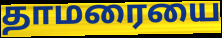
தாமரையை